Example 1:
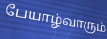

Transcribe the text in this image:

பேயாழ்வாரும்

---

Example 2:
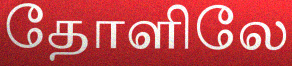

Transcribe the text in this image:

தோளிலே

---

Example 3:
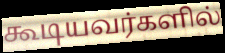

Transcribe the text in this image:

கூடியவர்களில்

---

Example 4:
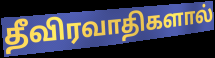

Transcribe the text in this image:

தீவிரவாதிகளால்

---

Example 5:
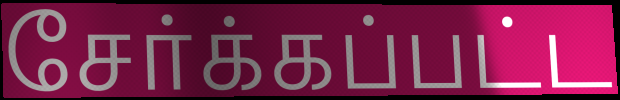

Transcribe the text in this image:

சேர்க்கப்பட்ட